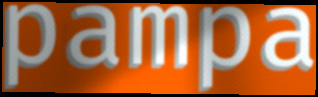
pampa